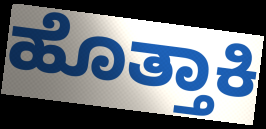
ಹೊತ್ತಾಕಿ